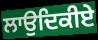
ਲਾਉਦਿਕੀਏ